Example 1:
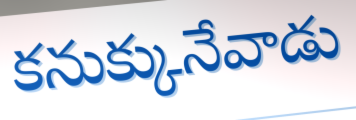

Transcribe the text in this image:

కనుక్కునేవాడు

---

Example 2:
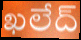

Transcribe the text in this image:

ఖలేద్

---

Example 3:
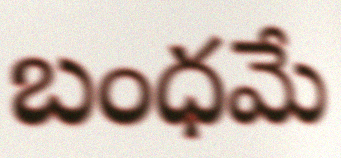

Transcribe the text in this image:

బంధమే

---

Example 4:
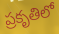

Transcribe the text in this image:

ప్రకృతిలో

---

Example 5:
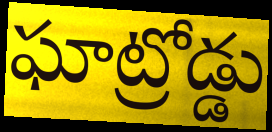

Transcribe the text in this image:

ఘాట్రోడ్డు